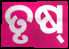
ତୃଷ୍